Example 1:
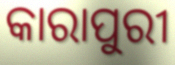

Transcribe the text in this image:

କାରାପୁରୀ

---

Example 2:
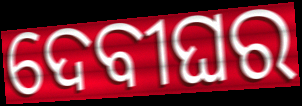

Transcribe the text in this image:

ଦେବୀଘର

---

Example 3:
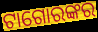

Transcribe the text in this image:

ଟାଗୋରଙ୍କର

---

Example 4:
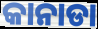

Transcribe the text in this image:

କାନାଡା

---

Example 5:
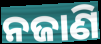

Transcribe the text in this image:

ନଜାଣି